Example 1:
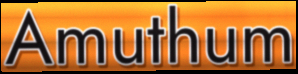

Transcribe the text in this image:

Amuthum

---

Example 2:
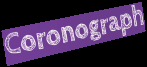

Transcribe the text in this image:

Coronograph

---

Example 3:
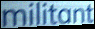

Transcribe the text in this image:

militant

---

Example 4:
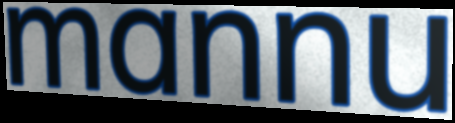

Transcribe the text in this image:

mannu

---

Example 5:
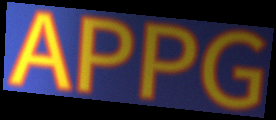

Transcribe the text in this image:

APPG